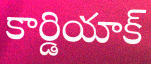
కార్డియాక్